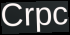
Crpc